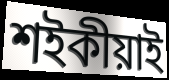
শইকীয়াই